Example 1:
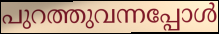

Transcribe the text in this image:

പുറത്തുവന്നപ്പോൾ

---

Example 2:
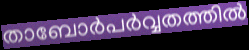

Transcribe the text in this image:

താബോർപർവ്വതത്തിൽ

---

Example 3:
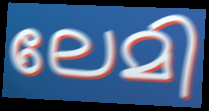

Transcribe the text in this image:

ലേമി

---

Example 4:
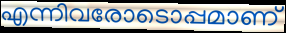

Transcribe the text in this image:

എന്നിവരോടൊപ്പമാണ്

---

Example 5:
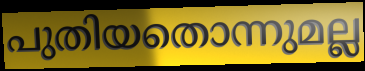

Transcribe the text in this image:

പുതിയതൊന്നുമല്ല